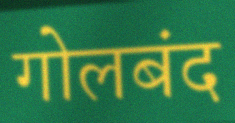
गोलबंद